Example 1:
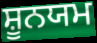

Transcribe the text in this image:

ਸ਼ੂਨਯਮ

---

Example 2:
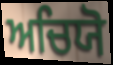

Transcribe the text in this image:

ਅਚਿਯੋ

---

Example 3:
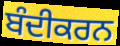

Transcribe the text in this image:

ਬੰਦੀਕਰਨ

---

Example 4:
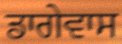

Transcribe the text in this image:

ਡਾਗੇਵਾਸ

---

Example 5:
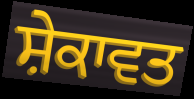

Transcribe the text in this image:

ਸ਼ੇਕਾਵਤ